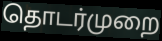
தொடர்முறை